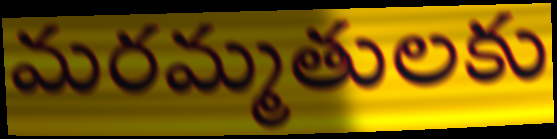
మరమ్మతులకు